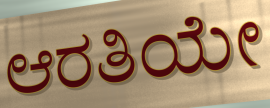
ಆರತಿಯೇ